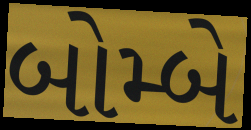
બોમ્બે